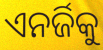
ଏନର୍ଜିକୁ